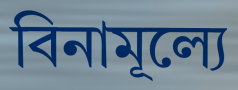
বিনামূল্যে